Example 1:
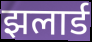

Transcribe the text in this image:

झलार्ड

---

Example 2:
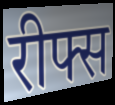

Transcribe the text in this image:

रीफ्स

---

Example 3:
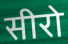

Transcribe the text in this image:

सीरो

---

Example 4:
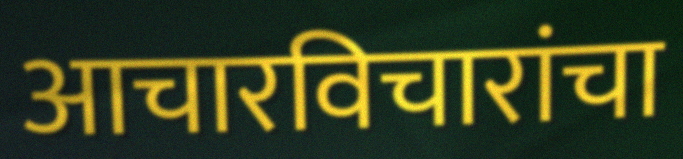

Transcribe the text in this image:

आचारविचारांचा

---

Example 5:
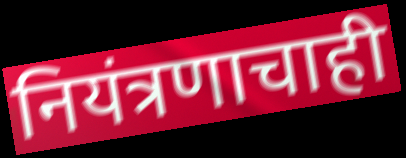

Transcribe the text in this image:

नियंत्रणाचाही